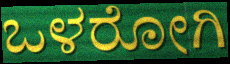
ಒಳರೋಗಿ